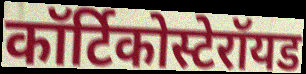
कॉर्टिकोस्टेरॉयड